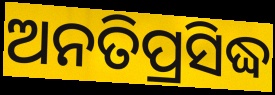
ଅନତିପ୍ରସିଦ୍ଧ